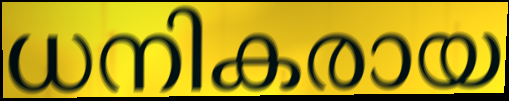
ധനികരായ